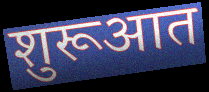
शुरूआत